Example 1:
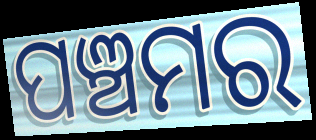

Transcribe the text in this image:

ପଞ୍ଚମର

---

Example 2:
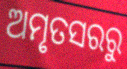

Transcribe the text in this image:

ଅମୃତସରରୁ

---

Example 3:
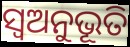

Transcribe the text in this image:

ସ୍ୱଅନୁଭୂତି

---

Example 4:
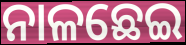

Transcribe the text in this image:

ନାଳଛେଇ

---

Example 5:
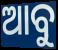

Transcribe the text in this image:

ଆବୁ